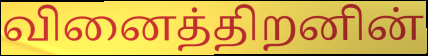
வினைத்திறனின்